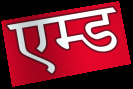
एम्ड